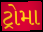
ટ્રોમા